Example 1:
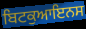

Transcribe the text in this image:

ਬਿਟਕੁਆਇਨਸ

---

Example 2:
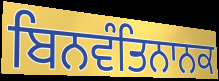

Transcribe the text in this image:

ਬਿਨਵੰਤਿਨਾਨਕ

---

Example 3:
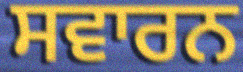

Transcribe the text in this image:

ਸਵਾਰਨ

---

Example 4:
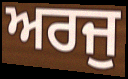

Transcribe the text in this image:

ਅਰਜੁ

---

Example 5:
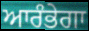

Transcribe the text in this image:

ਆਰੰਭੇਗਾ